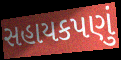
સહાયકપણું